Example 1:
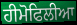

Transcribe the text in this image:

ਹੀਮੋਫਿਲੀਆ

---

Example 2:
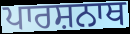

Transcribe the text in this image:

ਪਾਰਸ਼ਨਾਥ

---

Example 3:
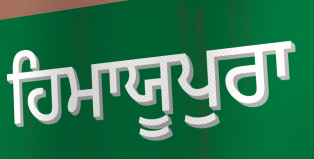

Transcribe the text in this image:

ਹਿਮਾਯੂਪੁਰਾ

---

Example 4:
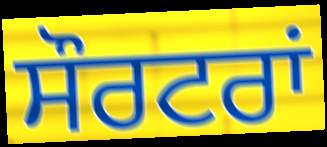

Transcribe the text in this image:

ਸੌਰਟਰਾਂ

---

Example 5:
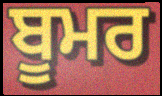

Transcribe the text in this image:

ਬੂਮਰ